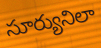
సూర్యునిలా